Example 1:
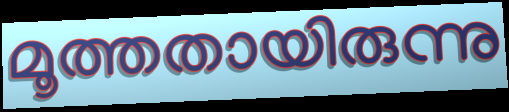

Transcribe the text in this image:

മൂത്തതായിരുന്നു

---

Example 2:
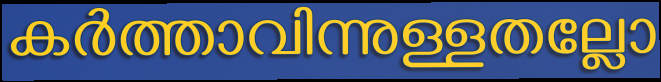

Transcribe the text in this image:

കർത്താവിന്നുള്ളതല്ലോ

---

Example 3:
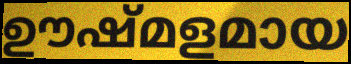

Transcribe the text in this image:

ഊഷ്മളമായ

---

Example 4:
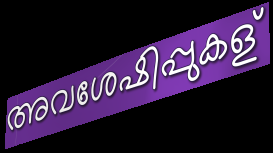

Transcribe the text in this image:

അവശേഷിപ്പുകള്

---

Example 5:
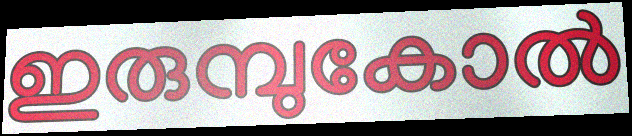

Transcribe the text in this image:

ഇരുമ്പുകോൽ